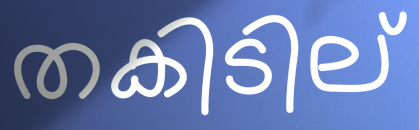
തകിടില്